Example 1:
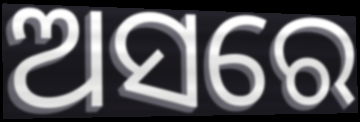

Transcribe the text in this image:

ଅସରେ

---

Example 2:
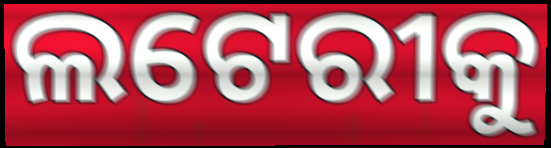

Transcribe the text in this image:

ଲଟେରୀକୁ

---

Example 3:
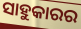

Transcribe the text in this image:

ସାହୁକାରର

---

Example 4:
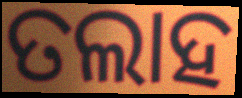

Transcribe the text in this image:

ତଲାହ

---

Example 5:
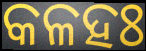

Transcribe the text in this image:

କଳହଃ